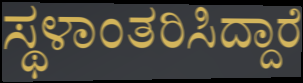
ಸ್ಥಳಾಂತರಿಸಿದ್ದಾರೆ